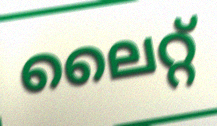
ലൈറ്റ്